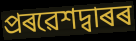
প্ৰৰৱেশদ্বাৰৰ